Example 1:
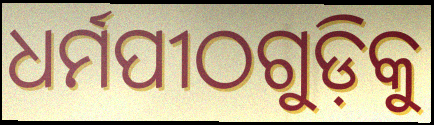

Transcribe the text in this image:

ଧର୍ମପୀଠଗୁଡ଼ିକୁ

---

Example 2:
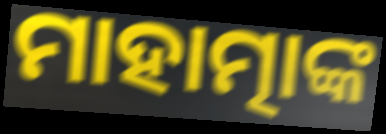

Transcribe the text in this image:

ମାହାତ୍ମାଙ୍କ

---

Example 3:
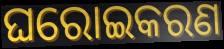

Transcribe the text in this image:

ଘରୋଇକରଣ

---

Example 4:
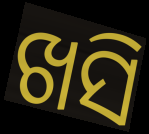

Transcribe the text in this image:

ଖସି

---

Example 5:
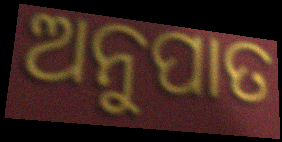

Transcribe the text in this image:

ଅନୁପାତ